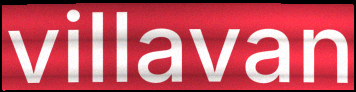
villavan